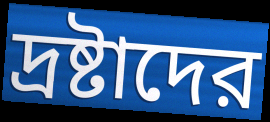
দ্রষ্টাদের